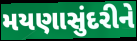
મયણાસુંદરીને